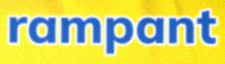
rampant